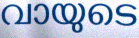
വായുടെ